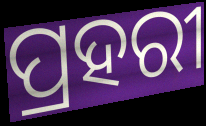
ପ୍ରହରୀ